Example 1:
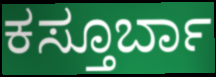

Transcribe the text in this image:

ಕಸ್ತೂರ್ಬಾ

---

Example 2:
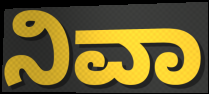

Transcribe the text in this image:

ನಿವಾ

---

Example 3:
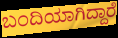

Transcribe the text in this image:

ಬಂದಿಯಾಗಿದ್ದಾರೆ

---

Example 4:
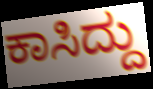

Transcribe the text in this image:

ಕಾಸಿದ್ದು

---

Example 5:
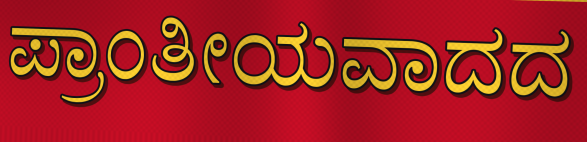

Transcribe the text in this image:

ಪ್ರಾಂತೀಯವಾದದ